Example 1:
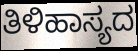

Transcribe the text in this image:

ತಿಳಿಹಾಸ್ಯದ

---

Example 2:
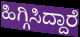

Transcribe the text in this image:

ಹಿಗ್ಗಿಸಿದ್ದಾರೆ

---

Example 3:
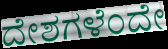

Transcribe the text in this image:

ದೇಶಗಳೆಂದೇ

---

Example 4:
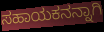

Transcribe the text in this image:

ಸಹಾಯಕನನ್ನಾಗಿ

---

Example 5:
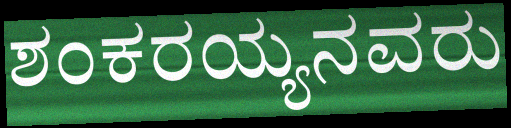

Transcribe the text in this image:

ಶಂಕರಯ್ಯನವರು